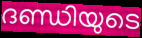
ദണ്ഡിയുടെ